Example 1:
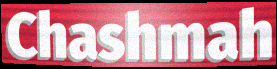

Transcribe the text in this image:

Chashmah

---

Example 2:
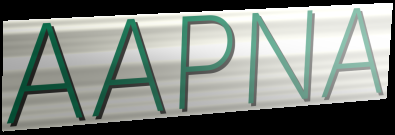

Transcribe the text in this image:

AAPNA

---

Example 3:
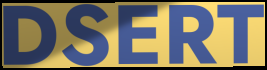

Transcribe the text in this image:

DSERT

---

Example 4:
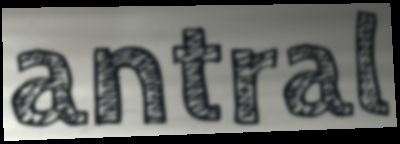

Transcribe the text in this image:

antral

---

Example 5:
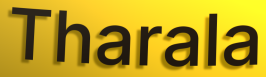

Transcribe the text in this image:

Tharala